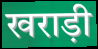
खराड़ी